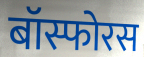
बॉस्फोरस